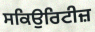
ਸਕਿਉਰਿਟੀਜ਼